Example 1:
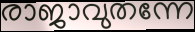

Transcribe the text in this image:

രാജാവുതന്നേ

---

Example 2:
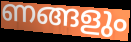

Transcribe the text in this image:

ണങ്ങളും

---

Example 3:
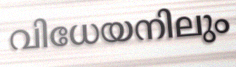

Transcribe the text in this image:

വിധേയനിലും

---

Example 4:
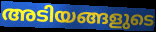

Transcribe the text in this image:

അടിയങ്ങളുടെ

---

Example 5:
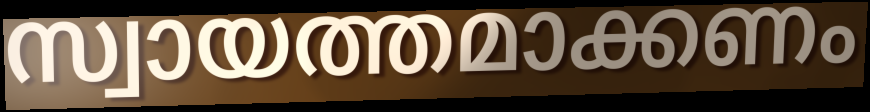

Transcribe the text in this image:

സ്വായത്തമാക്കണം